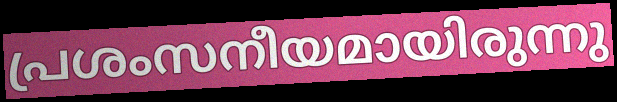
പ്രശംസനീയമായിരുന്നു